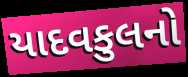
યાદવકુલનો